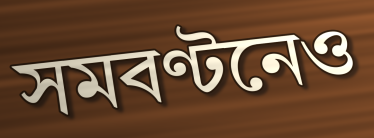
সমবণ্টনেও